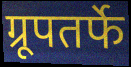
ग्रूपतर्फे